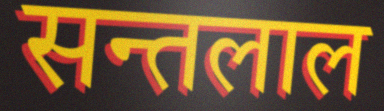
सन्तलाल